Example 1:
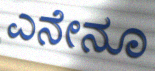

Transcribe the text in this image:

ಎನೇನೂ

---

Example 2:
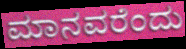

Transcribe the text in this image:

ಮಾನವರೆಂದು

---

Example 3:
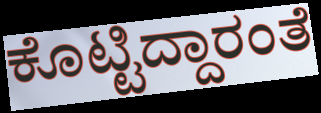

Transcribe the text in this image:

ಕೊಟ್ಟಿದ್ದಾರಂತೆ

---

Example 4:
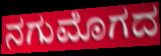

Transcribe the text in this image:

ನಗುಮೊಗದ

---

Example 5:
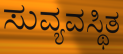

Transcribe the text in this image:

ಸುವ್ಯವಸ್ಥಿತ